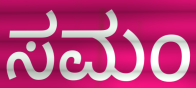
ಸಮಂ